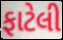
ફાટેલી